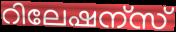
റിലേഷന്സ്